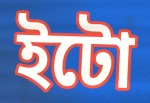
ইটো